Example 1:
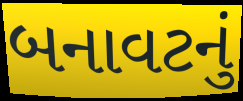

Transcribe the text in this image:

બનાવટનું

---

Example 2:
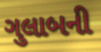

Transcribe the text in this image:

ગુલાબની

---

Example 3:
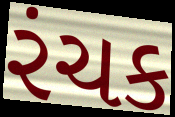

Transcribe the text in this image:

રંચક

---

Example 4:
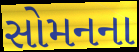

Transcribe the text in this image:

સોમનના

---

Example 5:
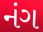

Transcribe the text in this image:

નંગ